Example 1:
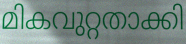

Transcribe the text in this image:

മികവുറ്റതാക്കി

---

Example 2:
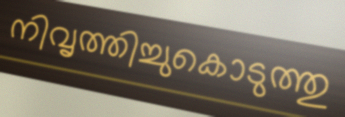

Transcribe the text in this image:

നിവൃത്തിച്ചുകൊടുത്തു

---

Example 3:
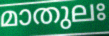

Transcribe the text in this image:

മാതുലഃ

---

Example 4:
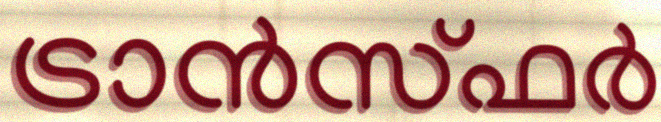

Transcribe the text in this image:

ട്രാൻസ്ഫർ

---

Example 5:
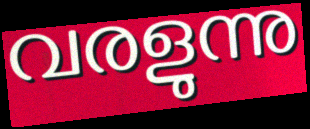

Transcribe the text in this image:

വരളുന്നു